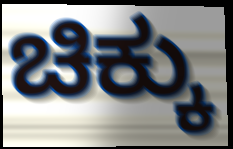
ಚಿಕ್ಕು